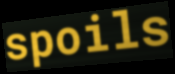
spoils